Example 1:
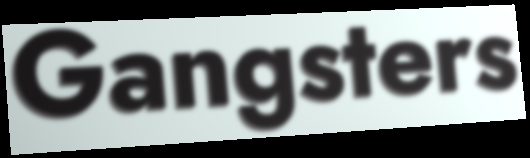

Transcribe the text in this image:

Gangsters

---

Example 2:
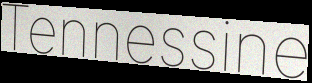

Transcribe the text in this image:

Tennessine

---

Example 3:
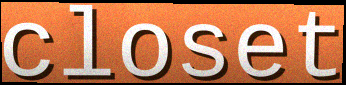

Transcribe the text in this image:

closet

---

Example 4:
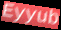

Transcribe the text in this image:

Eyyub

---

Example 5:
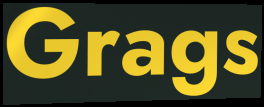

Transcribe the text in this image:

Grags